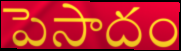
పెసాదం